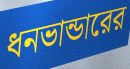
ধনভান্ডারের